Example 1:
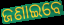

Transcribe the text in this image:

ଜଣାଇବେ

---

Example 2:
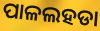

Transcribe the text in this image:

ପାଳଲହଡା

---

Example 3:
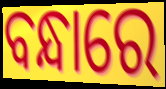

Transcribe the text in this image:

ବନ୍ଧାରେ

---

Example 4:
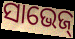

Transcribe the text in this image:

ସାଭେଜ୍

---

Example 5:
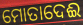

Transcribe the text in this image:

ମୋତାଦେଈ